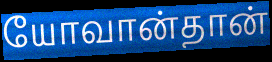
யோவான்தான்